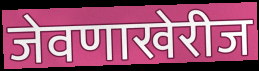
जेवणाखेरीज